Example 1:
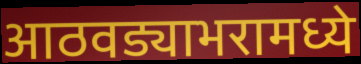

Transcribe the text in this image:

आठवड्याभरामध्ये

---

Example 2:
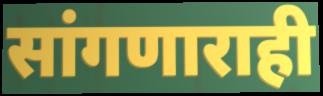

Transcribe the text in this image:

सांगणाराही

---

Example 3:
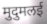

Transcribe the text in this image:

मुदुमलई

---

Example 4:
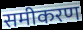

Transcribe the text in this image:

समीकरण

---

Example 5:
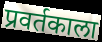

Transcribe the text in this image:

प्रवर्तकाला